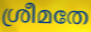
ശ്രീമതേ